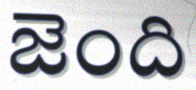
జెంది